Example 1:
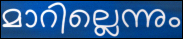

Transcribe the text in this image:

മാറില്ലെന്നും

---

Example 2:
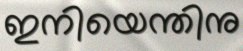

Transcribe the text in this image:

ഇനിയെന്തിനു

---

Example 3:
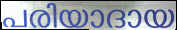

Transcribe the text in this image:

പരിയാദായ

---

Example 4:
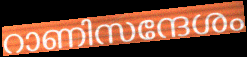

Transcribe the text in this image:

റാണിസന്ദേശം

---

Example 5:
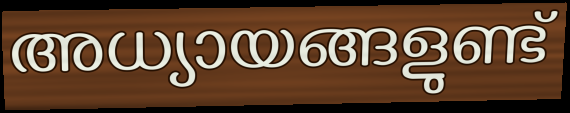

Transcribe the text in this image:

അധ്യായങ്ങളുണ്ട്